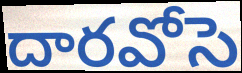
దారవోసె